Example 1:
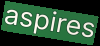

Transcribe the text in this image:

aspires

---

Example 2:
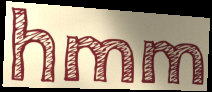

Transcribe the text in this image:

hmm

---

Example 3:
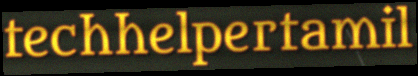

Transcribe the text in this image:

techhelpertamil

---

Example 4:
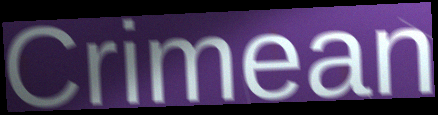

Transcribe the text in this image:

Crimean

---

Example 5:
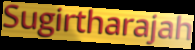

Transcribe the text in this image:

Sugirtharajah